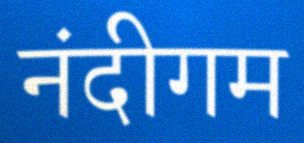
नंदीगम